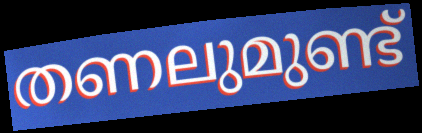
തണലുമുണ്ട്